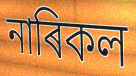
নাৰিকল